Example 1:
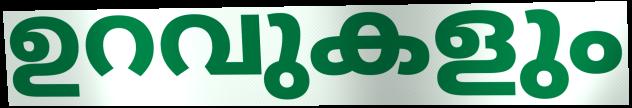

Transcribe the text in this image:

ഉറവുകളും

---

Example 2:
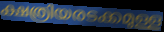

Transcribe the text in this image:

ക്ഷത്രിയരടക്കമുള്ള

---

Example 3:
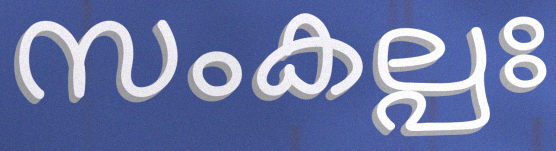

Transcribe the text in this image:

സംകല്പഃ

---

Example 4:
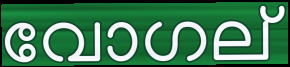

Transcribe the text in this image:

വോഗല്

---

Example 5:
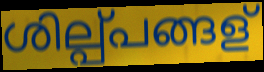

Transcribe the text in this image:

ശില്പ്പങ്ങള്